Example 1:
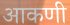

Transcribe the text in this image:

आकणी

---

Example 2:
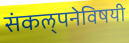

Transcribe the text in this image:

संकल्पनेविषयी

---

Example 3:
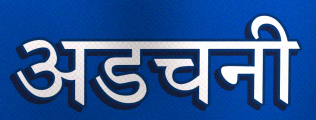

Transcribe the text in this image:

अडचनी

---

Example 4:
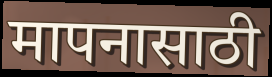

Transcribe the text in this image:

मापनासाठी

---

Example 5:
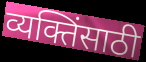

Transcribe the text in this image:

व्यक्तिंसाठी